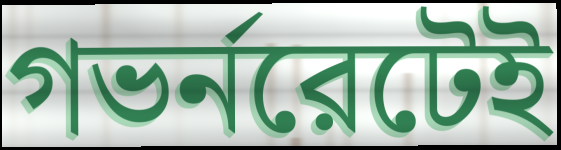
গভর্নরেটেই